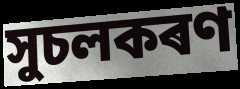
সুচলকৰণ